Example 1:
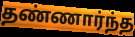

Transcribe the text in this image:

தண்ணார்ந்த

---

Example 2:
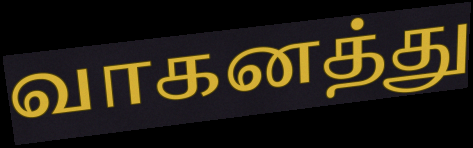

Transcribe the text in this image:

வாகனத்து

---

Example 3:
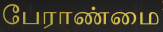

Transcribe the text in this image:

பேராண்மை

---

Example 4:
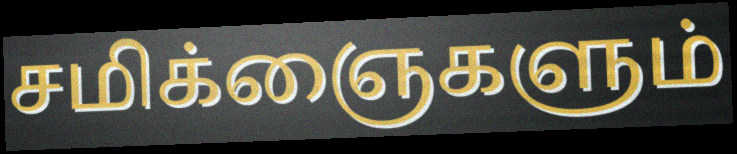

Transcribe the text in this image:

சமிக்ஞைகளும்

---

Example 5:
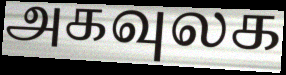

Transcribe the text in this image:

அகவுலக